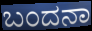
ಬಂದನಾ